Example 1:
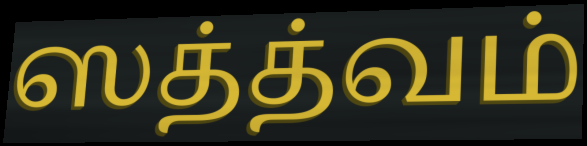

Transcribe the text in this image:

ஸத்த்வம்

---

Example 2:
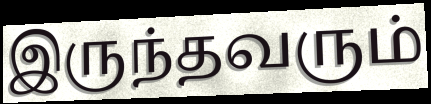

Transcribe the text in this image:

இருந்தவரும்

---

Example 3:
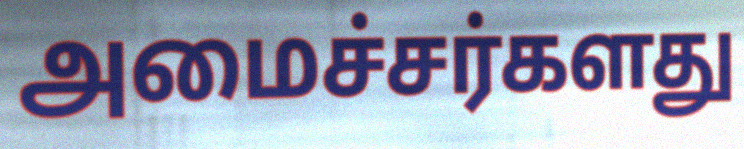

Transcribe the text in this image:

அமைச்சர்களது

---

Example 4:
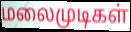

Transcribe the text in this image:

மலைமுடிகள்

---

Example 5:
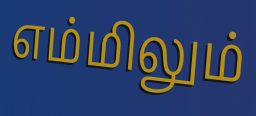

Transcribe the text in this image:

எம்மிலும்